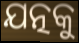
ଯତ୍ନକୁ